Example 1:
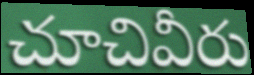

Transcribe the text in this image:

చూచివీరు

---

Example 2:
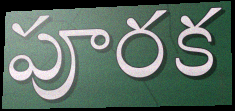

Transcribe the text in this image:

పూరక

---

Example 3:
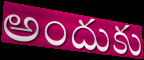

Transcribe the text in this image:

అందుకు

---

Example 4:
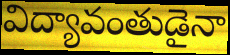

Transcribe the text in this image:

విద్యావంతుడైనా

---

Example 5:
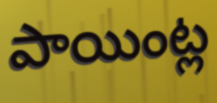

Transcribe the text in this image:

పాయింట్ల